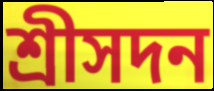
শ্রীসদন